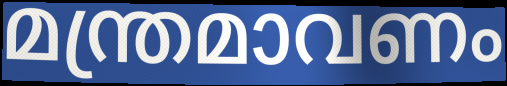
മന്ത്രമാവണം